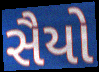
સૈયો